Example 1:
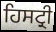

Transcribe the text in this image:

ਹਿਸਟ੍ਰੀ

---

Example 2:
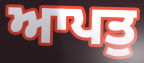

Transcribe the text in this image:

ਆਪਤੁ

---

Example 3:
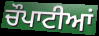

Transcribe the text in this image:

ਚੌਪਾਟੀਆਂ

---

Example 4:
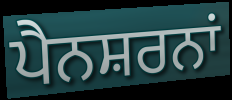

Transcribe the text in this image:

ਪੈਨਸ਼ਰਨਾਂ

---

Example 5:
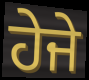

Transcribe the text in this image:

ਹੇਜੇ